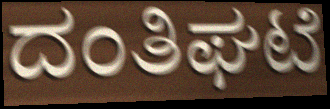
ದಂತಿಘಟೆ